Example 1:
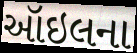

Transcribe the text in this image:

ઑઇલના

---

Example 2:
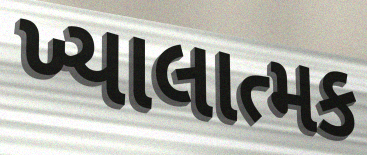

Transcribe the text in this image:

ખ્યાલાત્મક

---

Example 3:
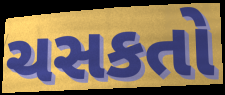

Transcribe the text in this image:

ચસકતો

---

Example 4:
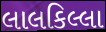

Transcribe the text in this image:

લાલકિલ્લા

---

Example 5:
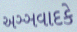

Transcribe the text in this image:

અઞ્ઞવાદકે